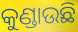
କୁଣ୍ଡାଉଛି